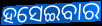
ହସେଇବାର